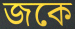
জকে